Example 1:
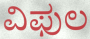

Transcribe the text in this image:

ವಿಫುಲ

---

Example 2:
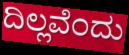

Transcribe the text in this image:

ದಿಲ್ಲವೆಂದು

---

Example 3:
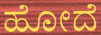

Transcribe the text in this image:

ಹೋದೆ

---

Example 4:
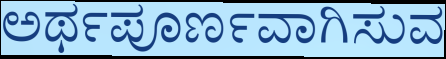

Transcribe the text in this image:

ಅರ್ಥಪೂರ್ಣವಾಗಿಸುವ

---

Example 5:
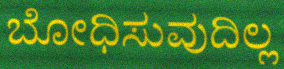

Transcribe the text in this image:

ಬೋಧಿಸುವುದಿಲ್ಲ